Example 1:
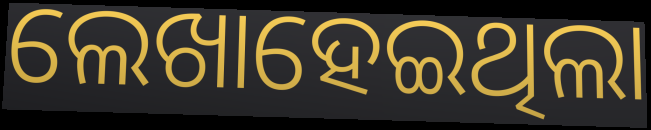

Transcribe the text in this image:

ଲେଖାହେଇଥିଲା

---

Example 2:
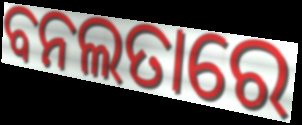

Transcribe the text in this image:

ବନଲତାରେ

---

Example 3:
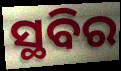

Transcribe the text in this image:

ସ୍ଥବିର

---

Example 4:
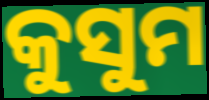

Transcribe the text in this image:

କୁସୁମ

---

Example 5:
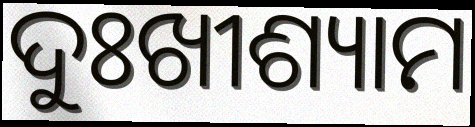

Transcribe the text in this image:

ଦୁଃଖୀଶ୍ୟାମ